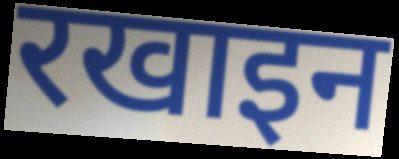
रखाइन